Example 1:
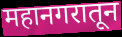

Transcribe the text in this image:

महानगरातून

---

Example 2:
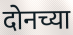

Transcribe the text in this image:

दोनच्या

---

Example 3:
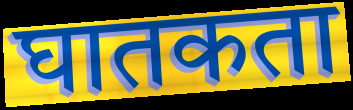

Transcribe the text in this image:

घातकता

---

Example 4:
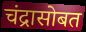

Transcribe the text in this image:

चंद्रासोबत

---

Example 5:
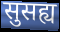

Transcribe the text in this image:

सुसह्य